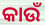
କାଉଁ